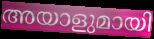
അയാളുമായി